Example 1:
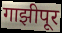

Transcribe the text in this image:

गाझीपूर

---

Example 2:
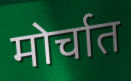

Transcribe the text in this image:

मोर्चात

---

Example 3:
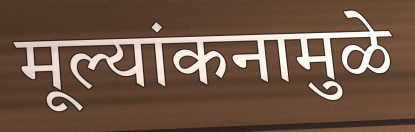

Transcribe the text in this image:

मूल्यांकनामुळे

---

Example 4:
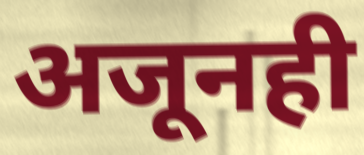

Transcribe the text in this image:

अजूनही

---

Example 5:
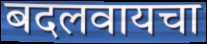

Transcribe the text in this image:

बदलवायचा